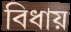
বিধায়